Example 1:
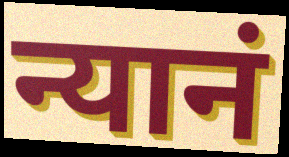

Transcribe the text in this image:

न्यानं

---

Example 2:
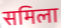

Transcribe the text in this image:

समिला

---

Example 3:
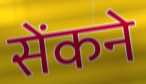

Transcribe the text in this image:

सेंकने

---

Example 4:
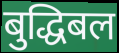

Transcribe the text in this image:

बुद्धिबल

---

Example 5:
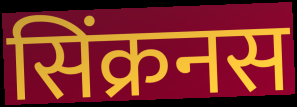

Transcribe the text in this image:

सिंक्रनस